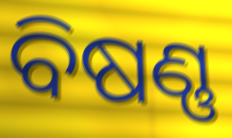
ବିଷଣ୍ଣ